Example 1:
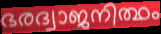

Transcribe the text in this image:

ഭരദ്വാജനിത്ഥം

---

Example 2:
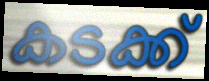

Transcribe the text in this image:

കടക്ക്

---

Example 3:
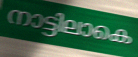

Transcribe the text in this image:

നാട്ടിലാകെ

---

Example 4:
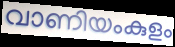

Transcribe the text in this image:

വാണിയംകുളം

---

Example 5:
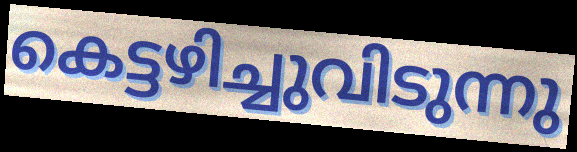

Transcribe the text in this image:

കെട്ടഴിച്ചുവിടുന്നു